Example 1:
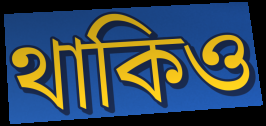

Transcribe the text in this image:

থাকিও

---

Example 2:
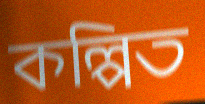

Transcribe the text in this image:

কল্পিত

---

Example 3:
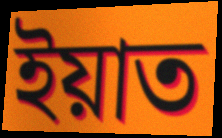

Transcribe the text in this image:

ইয়াত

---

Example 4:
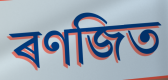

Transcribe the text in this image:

ৰণজিত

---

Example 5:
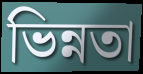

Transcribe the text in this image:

ভিন্নতা